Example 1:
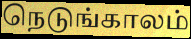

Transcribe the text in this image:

நெடுங்காலம்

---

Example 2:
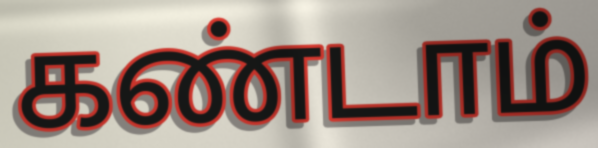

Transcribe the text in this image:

கண்டாம்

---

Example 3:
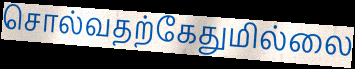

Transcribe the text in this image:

சொல்வதற்கேதுமில்லை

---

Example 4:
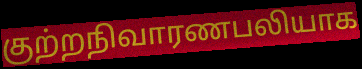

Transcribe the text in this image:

குற்றநிவாரணபலியாக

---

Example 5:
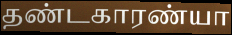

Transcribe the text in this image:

தண்டகாரண்யா